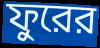
ফুরের